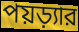
পয়ড়্যার